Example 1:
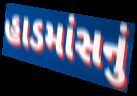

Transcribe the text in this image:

હાડમાંસનું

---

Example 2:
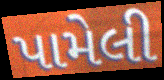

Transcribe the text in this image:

પામેલી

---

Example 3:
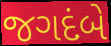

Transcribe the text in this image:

જગદંબે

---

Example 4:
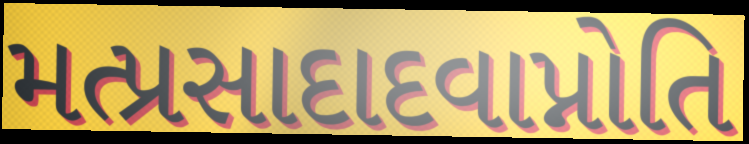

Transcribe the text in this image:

મત્પ્રસાદાદવાપ્નોતિ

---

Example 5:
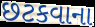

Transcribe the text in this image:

છટકવાના